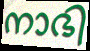
നാഭി